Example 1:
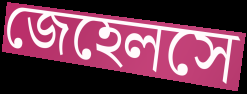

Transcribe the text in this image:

জেহেলসে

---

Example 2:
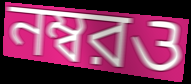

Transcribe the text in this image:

নম্বরও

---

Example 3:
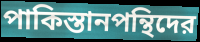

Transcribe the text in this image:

পাকিস্তানপন্থিদের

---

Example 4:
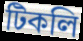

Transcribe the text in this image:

টিকলি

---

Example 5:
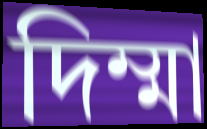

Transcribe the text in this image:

দিম্মা